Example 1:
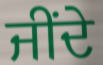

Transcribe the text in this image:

ਜੀਂਦੇ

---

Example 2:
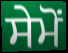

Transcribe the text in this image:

ਸੇਮੋਂ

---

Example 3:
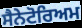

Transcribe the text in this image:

ਸੈਨੇਟੋਰਿਅਮ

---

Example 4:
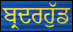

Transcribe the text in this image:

ਬ੍ਰਦਰਹੁੱਡ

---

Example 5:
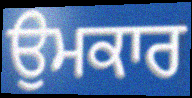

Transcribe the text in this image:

ਉਮਕਾਰ